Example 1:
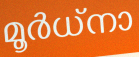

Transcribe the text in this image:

മൂർധ്നാ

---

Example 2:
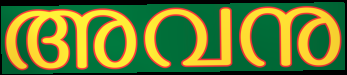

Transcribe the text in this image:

അവനു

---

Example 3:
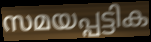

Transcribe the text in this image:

സമയപ്പട്ടിക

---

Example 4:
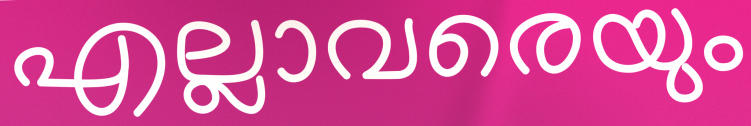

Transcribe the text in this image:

എല്ലാവരെയും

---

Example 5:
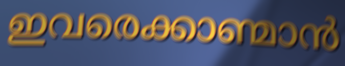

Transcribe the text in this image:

ഇവരെക്കാണ്മാൻ